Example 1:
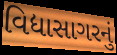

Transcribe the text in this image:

વિદ્યાસાગરનું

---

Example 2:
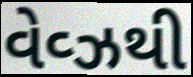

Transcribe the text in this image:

વેવ્ઝથી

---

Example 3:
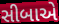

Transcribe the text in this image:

સીબાએ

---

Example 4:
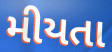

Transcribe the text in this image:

મીયતા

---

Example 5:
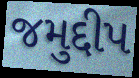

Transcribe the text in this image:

જમુદ્દીપ